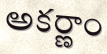
అకర్ణాం